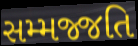
સમ્મજ્જતિ